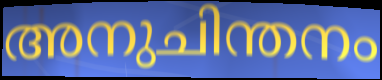
അനുചിന്തനം